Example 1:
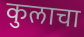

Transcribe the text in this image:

कुलाचा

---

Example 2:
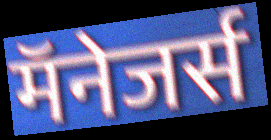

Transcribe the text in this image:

मॅनेजर्स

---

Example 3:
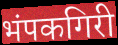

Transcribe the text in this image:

भंपकगिरी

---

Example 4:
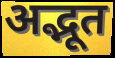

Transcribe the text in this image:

अद्भूत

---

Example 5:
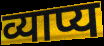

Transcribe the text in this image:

व्याप्य